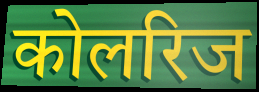
कोलरिज